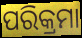
ପରିକ୍ରମା